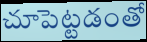
చూపెట్టడంతో